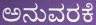
ಅನುವರಕೆ